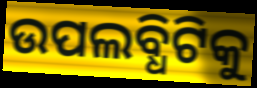
ଉପଲବ୍ଧିଟିକୁ